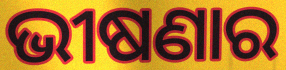
ଭୀଷଣାର